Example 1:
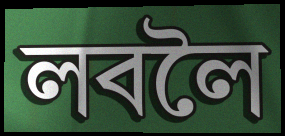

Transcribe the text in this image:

লবলৈ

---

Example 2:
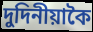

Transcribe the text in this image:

দুদিনীয়াকৈ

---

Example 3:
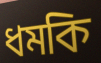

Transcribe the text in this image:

ধমকি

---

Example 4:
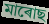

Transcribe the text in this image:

মাৰোছ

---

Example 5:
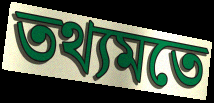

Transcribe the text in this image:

তথ্যমতে